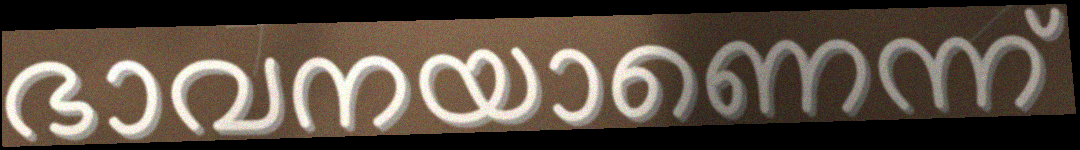
ഭാവനയാണെന്ന്